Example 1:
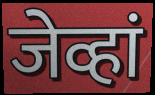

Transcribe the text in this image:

जेव्हां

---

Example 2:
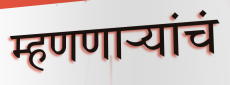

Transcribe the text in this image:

म्हणणाऱ्यांचं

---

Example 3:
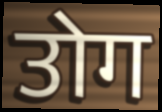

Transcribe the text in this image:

उोग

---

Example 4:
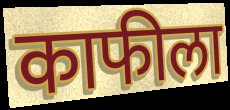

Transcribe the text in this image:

काफीला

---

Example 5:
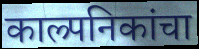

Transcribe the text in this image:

काल्पनिकांचा